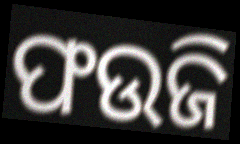
ଫଉଜି